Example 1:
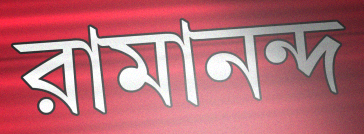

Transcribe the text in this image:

রামানন্দ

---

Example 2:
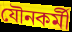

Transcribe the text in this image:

যৌনকর্মী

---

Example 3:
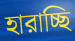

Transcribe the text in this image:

হারাচ্ছি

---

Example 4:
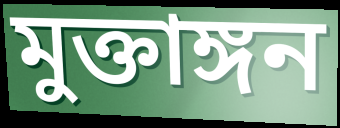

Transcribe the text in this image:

মুক্তাঙ্গন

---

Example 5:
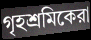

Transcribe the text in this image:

গৃহশ্রমিকেরা